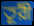
তূরী